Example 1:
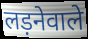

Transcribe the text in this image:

लड़नेवाले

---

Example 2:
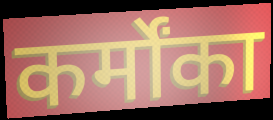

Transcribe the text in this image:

कर्मोंका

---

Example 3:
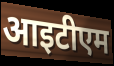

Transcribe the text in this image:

आइटीएम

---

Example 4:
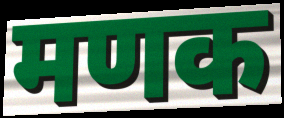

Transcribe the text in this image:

मणक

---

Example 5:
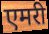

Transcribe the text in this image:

एमरी